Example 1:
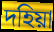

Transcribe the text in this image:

দহিয়া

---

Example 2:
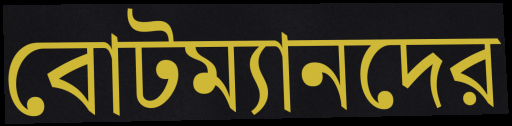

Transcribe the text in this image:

বোটম্যানদের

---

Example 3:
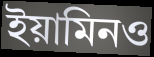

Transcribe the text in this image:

ইয়ামিনও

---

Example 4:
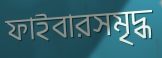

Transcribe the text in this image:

ফাইবারসমৃদ্ধ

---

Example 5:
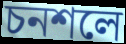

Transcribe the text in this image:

চনশলে